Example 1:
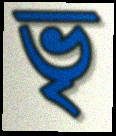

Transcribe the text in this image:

ভৃ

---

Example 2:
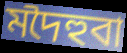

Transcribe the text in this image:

মদৈহুবা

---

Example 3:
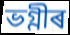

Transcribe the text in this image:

ভগ্নীৰ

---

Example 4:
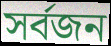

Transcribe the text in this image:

সৰ্বজন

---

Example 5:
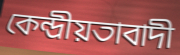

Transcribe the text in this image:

কেন্দ্ৰীয়তাবাদী